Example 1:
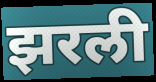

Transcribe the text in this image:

झरली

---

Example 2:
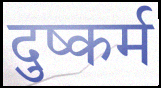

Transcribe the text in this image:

दुष्कर्म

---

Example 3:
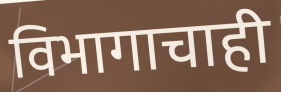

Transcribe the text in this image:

विभागाचाही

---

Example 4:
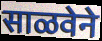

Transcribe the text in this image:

साळवेने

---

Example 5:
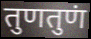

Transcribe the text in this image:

तुणतुणं